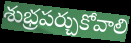
శుభ్రపర్చుకోవాలి